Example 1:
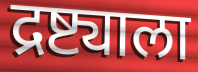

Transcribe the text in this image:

द्रष्ट्याला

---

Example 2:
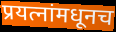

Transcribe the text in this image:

प्रयत्नांमधूनच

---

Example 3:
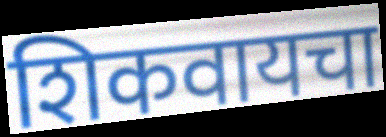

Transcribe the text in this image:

शिकवायचा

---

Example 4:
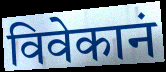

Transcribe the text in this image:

विवेकानं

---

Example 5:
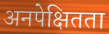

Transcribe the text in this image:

अनपेक्षितता